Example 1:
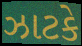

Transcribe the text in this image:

ઝાટકે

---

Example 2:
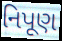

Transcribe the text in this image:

નિપૂણ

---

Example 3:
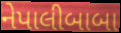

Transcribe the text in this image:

નેપાલીબાબા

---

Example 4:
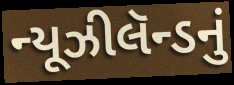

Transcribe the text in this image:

ન્યૂઝીલૅન્ડનું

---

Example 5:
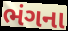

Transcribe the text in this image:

ભંગના